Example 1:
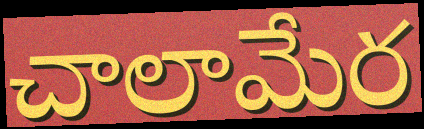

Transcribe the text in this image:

చాలామేర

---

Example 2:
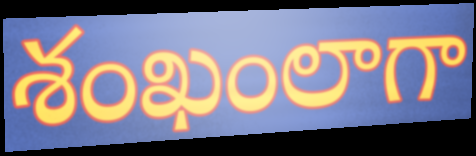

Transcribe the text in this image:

శంఖంలాగా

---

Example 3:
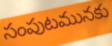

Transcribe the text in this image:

సంపుటమునకు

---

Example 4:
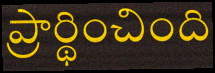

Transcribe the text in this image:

ప్రార్థించింది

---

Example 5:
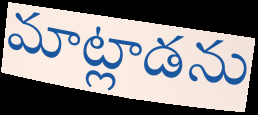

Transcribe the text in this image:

మాట్లాడను